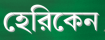
হেরিকেন